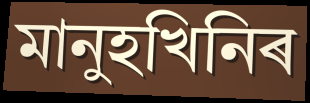
মানুহখিনিৰ